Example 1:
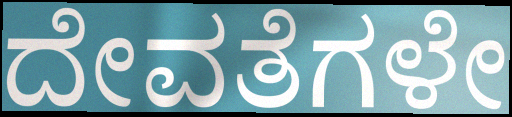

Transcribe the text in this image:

ದೇವತೆಗಳೇ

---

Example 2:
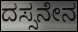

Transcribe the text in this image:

ದಸ್ಸನೇನ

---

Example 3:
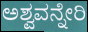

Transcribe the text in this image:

ಅಶ್ವವನ್ನೇರಿ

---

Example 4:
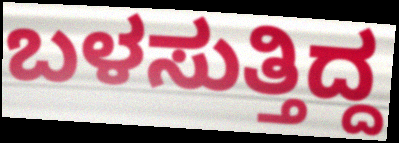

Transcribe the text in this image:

ಬಳಸುತ್ತಿದ್ದ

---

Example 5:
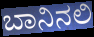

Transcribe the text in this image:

ಬಾನಿನಲಿ